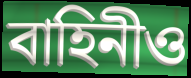
বাহিনীও